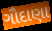
ગૌદાણા